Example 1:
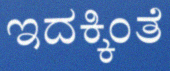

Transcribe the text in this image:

ಇದಕ್ಕಿಂತೆ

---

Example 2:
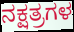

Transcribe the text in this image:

ನಕ್ಷತ್ರಗಳ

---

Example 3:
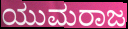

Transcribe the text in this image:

ಯುಮರಾಜ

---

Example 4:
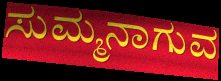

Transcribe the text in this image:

ಸುಮ್ಮನಾಗುವ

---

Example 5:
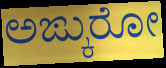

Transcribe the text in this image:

ಅಙ್ಕುರೋ